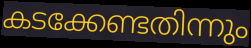
കടക്കേണ്ടതിന്നും